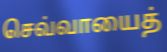
செவ்வாயைத்